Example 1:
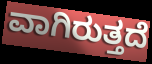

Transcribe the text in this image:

ವಾಗಿರುತ್ತದೆ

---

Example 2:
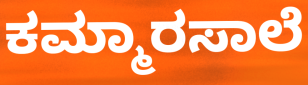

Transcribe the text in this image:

ಕಮ್ಮಾರಸಾಲೆ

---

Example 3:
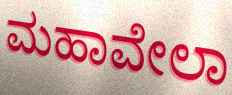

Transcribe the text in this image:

ಮಹಾವೇಲಾ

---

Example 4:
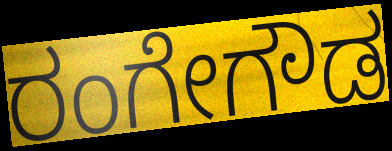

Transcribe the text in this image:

ರಂಗೇಗೌಡ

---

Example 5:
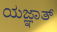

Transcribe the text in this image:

ಯಜ್ಞಾತ್